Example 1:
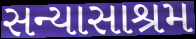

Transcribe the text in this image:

સન્યાસાશ્રમ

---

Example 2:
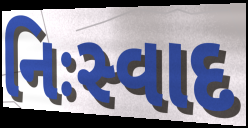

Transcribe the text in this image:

નિઃસ્વાદ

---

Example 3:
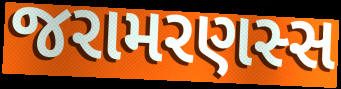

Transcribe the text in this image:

જરામરણસ્સ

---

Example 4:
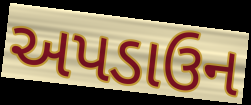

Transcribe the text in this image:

અપડાઉન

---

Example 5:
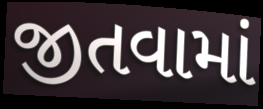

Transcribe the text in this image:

જીતવામાં